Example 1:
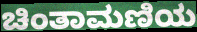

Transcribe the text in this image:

ಚಿಂತಾಮಣಿಯ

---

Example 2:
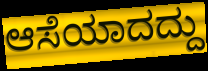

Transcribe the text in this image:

ಆಸೆಯಾದದ್ದು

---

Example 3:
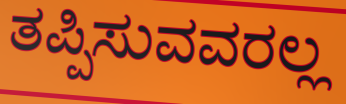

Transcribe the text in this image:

ತಪ್ಪಿಸುವವರಲ್ಲ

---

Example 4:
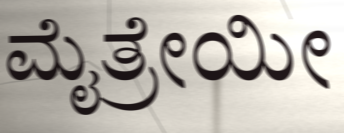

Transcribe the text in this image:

ಮೈತ್ರೇಯೀ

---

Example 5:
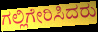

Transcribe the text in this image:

ಗಲ್ಲಿಗೇರಿಸಿದರು